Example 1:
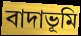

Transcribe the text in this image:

বাদাভূমি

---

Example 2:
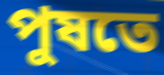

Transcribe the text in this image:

পুষতে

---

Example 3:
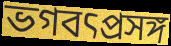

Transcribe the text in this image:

ভগবৎপ্রসঙ্গ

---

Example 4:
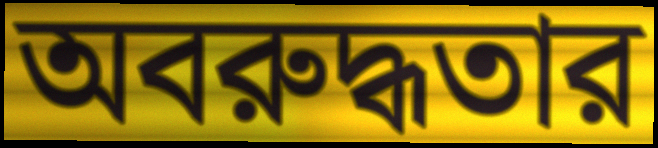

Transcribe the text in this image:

অবরুদ্ধতার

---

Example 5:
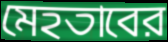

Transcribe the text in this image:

মেহতাবের